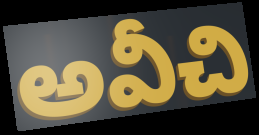
అవీచి